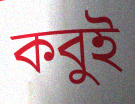
কবুই